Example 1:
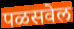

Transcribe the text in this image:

पळसवेल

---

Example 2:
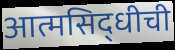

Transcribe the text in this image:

आत्मसिद्धीची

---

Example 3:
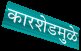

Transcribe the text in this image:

कारशेडमुळे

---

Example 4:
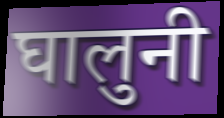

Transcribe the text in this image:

घालुनी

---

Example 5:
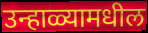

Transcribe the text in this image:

उन्हाळ्यामधील